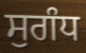
ਸੁਗੰਧ